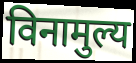
विनामुल्य